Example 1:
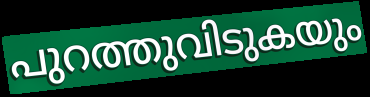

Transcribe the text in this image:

പുറത്തുവിടുകയും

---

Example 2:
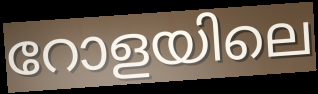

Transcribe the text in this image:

റോളയിലെ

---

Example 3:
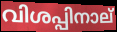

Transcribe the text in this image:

വിശപ്പിനാല്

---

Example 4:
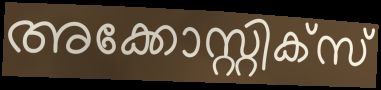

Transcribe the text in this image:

അക്കോസ്റ്റിക്സ്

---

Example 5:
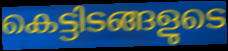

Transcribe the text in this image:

കെട്ടിടങ്ങളുടെ